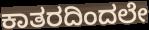
ಕಾತರದಿಂದಲೇ